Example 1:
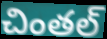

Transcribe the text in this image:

చింతల్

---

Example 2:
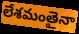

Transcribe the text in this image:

లేశమంతైనా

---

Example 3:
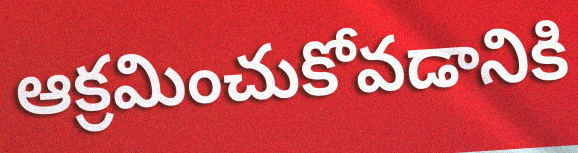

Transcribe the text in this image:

ఆక్రమించుకోవడానికి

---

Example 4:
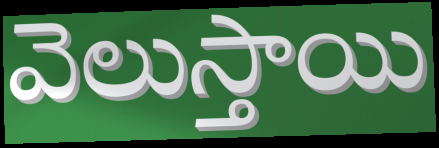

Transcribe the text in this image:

వెలుస్తాయి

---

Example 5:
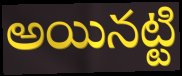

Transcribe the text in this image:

అయినట్టి